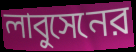
লাবুসেনের